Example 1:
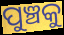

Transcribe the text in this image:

ପୁଞ୍ଚକୁ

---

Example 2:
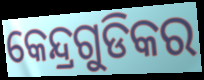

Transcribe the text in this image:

କେନ୍ଦ୍ରଗୁଡିକର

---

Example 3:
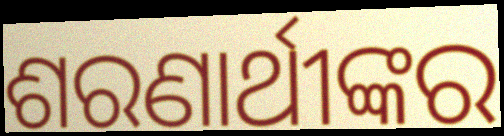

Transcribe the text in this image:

ଶରଣାର୍ଥୀଙ୍କର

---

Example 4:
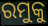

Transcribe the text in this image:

ରମୁକୁ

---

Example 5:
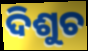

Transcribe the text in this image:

ଦିଶୁଚ